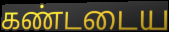
கண்டடைய